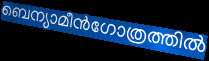
ബെന്യാമീൻഗോത്രത്തിൽ